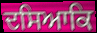
ਦਸਿਆਕਿ